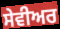
ਸੇਵੀਅਰ